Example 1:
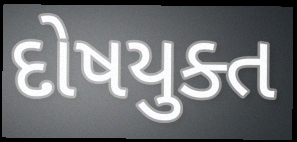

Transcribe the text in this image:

દોષયુક્ત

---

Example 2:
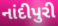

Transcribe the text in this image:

નાંદીપુરી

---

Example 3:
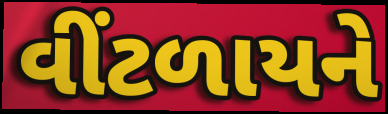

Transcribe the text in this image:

વીંટળાયને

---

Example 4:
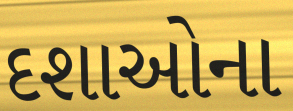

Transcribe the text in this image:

દશાઓના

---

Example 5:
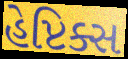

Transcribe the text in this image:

હેપ્ટિક્સ